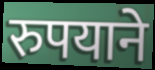
रुपयाने